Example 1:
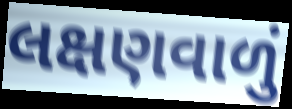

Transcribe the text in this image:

લક્ષણવાળું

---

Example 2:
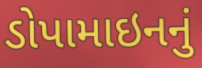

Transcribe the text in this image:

ડોપામાઇનનું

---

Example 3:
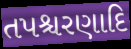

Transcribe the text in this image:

તપશ્ચરણાદિ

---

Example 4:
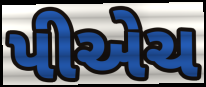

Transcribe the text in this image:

પીએચ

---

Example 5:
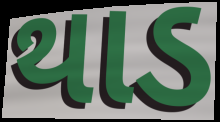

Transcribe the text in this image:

થાડ